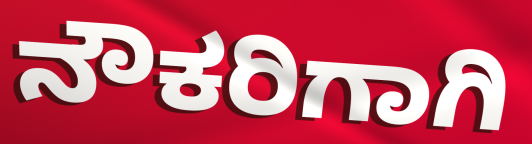
ನೌಕರಿಗಾಗಿ